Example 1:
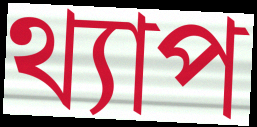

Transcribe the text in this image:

থ্যাপ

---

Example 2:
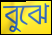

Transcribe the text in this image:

বুঝে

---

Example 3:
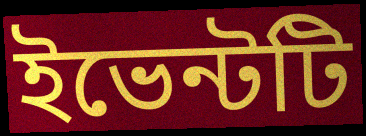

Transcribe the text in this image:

ইভেন্টটি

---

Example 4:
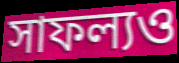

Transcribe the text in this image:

সাফল্যও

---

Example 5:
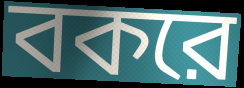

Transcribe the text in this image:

বকরে